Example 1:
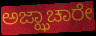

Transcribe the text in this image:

ಅಜ್ಝಾಚಾರೇ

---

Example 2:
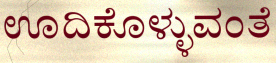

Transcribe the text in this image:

ಊದಿಕೊಳ್ಳುವಂತೆ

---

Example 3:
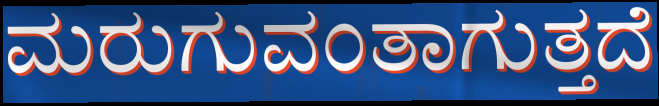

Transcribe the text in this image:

ಮರುಗುವಂತಾಗುತ್ತದೆ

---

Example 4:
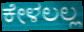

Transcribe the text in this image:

ಕೇಳಲಲ್ಲ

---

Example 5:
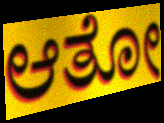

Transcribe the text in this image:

ಆತೋ